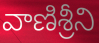
వాణిశ్రీని